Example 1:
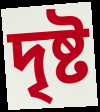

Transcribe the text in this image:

দৃষ্ট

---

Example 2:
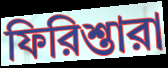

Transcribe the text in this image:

ফিরিশ্তারা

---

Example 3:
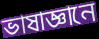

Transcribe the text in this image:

ভাষাজ্ঞানে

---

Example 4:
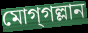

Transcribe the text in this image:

মোগ্‌গল্লান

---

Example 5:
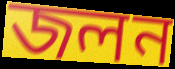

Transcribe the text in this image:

জলন